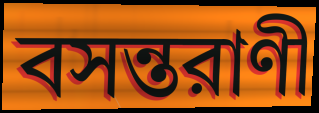
বসন্তরাণী